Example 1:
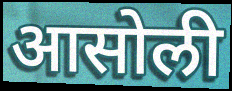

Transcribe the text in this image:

आसोली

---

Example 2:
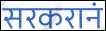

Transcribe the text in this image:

सरकरानं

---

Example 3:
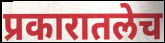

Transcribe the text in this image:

प्रकारातलेच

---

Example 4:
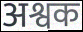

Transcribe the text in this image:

अश्वक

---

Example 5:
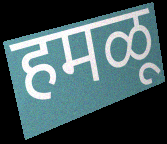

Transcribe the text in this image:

हमळू